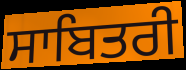
ਸਾਬਿਤਰੀ